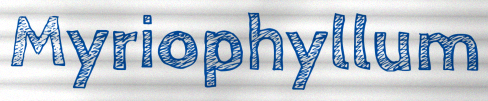
Myriophyllum